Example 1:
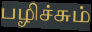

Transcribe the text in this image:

பழிச்சும்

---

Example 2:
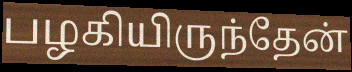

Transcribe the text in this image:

பழகியிருந்தேன்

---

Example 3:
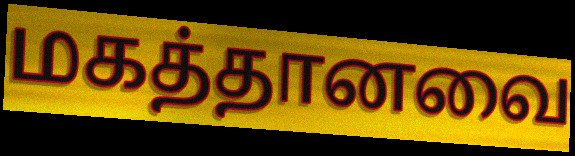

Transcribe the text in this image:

மகத்தானவை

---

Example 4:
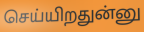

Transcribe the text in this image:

செய்யிறதுன்னு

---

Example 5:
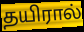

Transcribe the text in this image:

தயிரால்